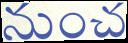
నుంచ